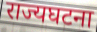
राज्यघटना